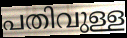
പതിവുള്ള